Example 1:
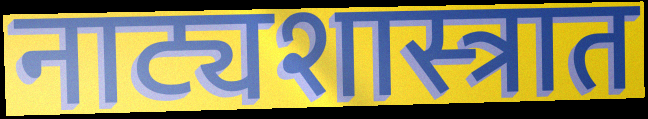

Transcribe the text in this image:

नाट्यशास्त्रात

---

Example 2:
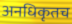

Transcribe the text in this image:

अनधिकृतच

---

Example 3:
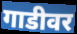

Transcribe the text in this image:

गाडीवर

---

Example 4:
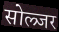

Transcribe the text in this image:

सोल्जर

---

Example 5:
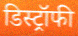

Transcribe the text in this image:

डिस्ट्रॉफी